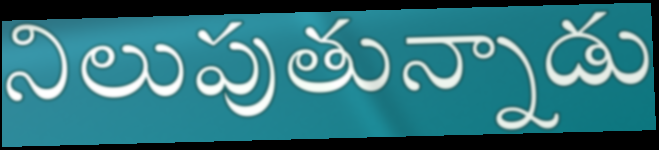
నిలుపుతున్నాడు